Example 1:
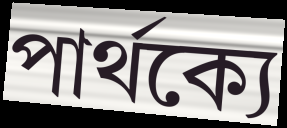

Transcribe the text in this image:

পার্থক্যে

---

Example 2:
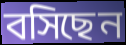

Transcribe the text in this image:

বসিছেন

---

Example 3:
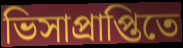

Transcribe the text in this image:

ভিসাপ্রাপ্তিতে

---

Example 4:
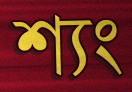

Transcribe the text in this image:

শ্যং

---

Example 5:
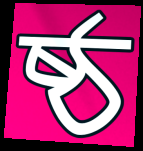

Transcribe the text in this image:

ষ্ঠ